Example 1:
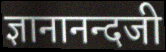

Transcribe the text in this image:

ज्ञानानन्दजी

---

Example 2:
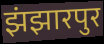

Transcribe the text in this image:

झंझारपुर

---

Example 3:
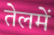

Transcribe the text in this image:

तेलमें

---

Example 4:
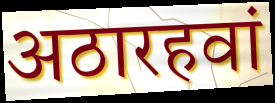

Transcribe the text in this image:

अठारहवां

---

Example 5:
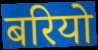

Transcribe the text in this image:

बरियो